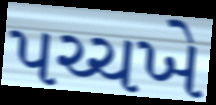
પચ્ચખે